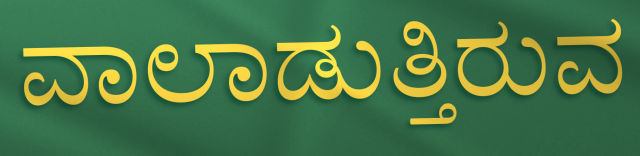
ವಾಲಾಡುತ್ತಿರುವ